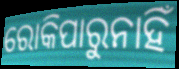
ରୋକିପାରୁନାହିଁ